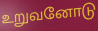
உறுவனோடு